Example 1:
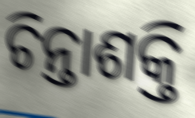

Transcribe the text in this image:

ଚିନ୍ତାଶକ୍ତି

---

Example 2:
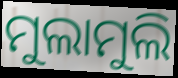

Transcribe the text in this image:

ମୁଲାମୁଲି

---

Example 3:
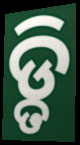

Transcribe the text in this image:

ଡ଼୍ଡି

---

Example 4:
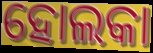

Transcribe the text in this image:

ହୋଲକା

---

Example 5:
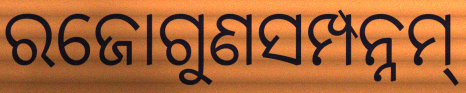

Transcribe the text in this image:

ରଜୋଗୁଣସମ୍ପନ୍ନମ୍